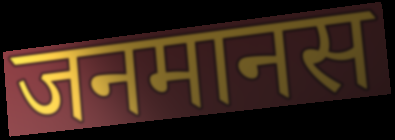
जनमानस